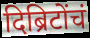
दिब्रिटोंचं